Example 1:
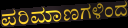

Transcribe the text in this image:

ಪರಿಮಾಣಗಳಿಂದ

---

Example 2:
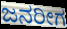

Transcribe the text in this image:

ಜನರೀಗ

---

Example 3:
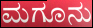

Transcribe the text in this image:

ಮಗೂನು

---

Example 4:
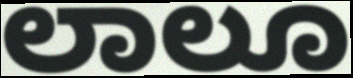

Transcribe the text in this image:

ಲಾಲೂ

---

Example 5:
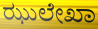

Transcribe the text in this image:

ಝುಲೇಖಾ